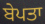
ਬੇਪਤਾ